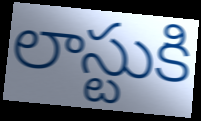
లాస్టుకి